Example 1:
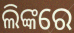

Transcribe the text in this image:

ଲିଙ୍କରେ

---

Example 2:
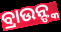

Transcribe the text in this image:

ବ୍ରାଉନ୍ଙ୍କ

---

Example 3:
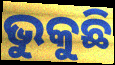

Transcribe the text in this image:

ଭୁକୁଛି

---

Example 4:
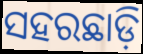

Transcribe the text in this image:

ସହରଛାଡ଼ି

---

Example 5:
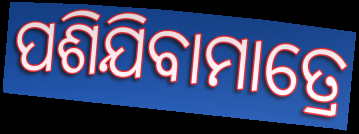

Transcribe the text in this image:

ପଶିଯିବାମାତ୍ରେ